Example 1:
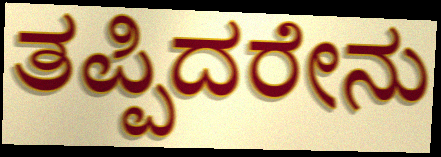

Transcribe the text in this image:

ತಪ್ಪಿದರೇನು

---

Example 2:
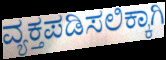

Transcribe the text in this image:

ವ್ಯಕ್ತಪಡಿಸಲಿಕ್ಕಾಗಿ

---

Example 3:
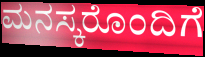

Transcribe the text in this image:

ಮನಸ್ಕರೊಂದಿಗೆ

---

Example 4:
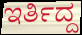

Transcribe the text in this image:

ಇರ್ತಿದ್ದ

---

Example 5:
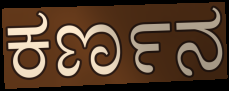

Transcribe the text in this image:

ಕರ್ಣನ